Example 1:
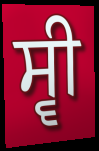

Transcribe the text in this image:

ਸ੍ਵੀ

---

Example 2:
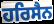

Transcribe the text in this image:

ਹਰਿਸੈਨ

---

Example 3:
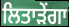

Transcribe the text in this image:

ਲਿਤਾੜੇਂਗਾ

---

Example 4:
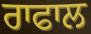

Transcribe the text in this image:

ਰਾਫਾਲ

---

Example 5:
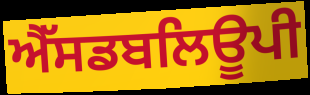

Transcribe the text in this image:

ਐੱਸਡਬਲਿਊਪੀ